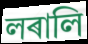
লৰালি